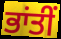
ਭਾਂਤੀਂ